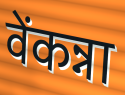
वेंकन्ना